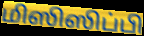
மிஸிஸிப்பி